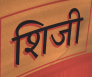
शिजी